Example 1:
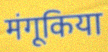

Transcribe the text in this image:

मंगूकिया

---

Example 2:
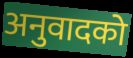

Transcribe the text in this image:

अनुवादको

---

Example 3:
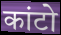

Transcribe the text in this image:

कांटो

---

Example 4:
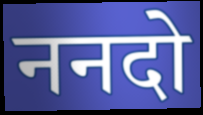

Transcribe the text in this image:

ननदो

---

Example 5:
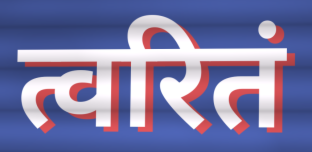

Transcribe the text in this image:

त्वरितं